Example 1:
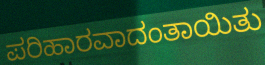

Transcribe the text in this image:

ಪರಿಹಾರವಾದಂತಾಯಿತು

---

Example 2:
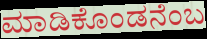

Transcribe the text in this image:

ಮಾಡಿಕೊಂಡನೆಂಬ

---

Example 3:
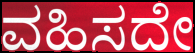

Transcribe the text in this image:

ವಹಿಸದೇ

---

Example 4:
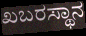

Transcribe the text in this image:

ಖಬರಸ್ಥಾನ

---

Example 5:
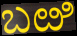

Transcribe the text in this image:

ಬೞಿ